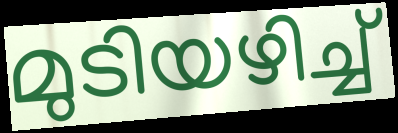
മുടിയഴിച്ച്